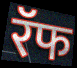
रॅफ